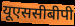
यूएससीबीपी